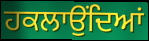
ਹਕਲਾਉਂਦਿਆਂ